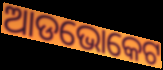
ଆଡଭୋକେଟ